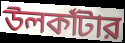
উলকাঁটার